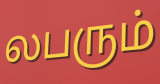
லபரும்